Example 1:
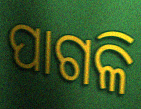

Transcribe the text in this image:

ପାଗଳି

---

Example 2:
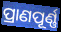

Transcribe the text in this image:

ପ୍ରାଣପୂର୍ଣ୍ଣ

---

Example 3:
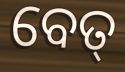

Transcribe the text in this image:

ବେତ୍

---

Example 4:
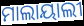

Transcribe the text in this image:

ମାଲାୟାଲୀ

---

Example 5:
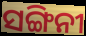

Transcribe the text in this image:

ସଙ୍ଗିନୀ